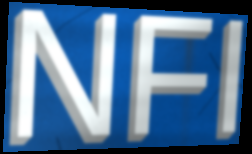
NFI